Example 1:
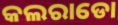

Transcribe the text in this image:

କଲରାଡୋ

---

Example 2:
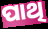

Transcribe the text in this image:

ପାଥି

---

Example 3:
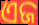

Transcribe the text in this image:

ଏଜ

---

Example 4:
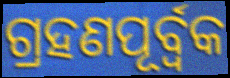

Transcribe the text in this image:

ଗ୍ରହଣପୂର୍ବ୍ବକ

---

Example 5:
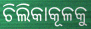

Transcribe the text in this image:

ଚିଲିକାକୂଳକୁ